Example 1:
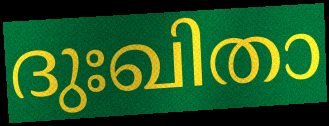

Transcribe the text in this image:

ദുഃഖിതാ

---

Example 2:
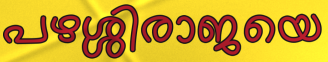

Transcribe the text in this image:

പഴശ്ശിരാജയെ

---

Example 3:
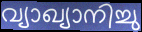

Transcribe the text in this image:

വ്യാഖ്യാനിച്ചു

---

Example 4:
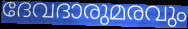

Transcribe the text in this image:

ദേവദാരുമരവും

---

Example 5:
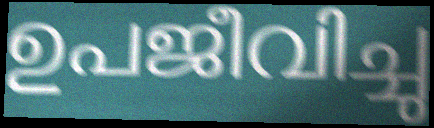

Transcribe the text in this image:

ഉപജീവിച്ചു